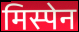
मिस्पेन